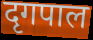
दृगपाल